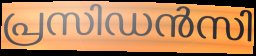
പ്രസിഡൻസി